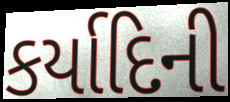
કર્યાદિની